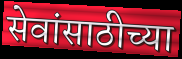
सेवांसाठीच्या